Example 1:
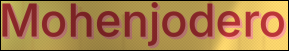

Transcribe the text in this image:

Mohenjodero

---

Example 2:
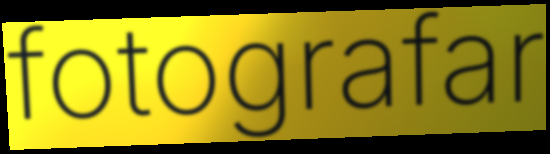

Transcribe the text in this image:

fotografar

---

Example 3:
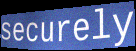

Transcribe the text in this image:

securely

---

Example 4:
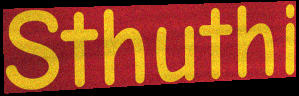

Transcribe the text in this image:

Sthuthi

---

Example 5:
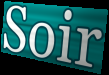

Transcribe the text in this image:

Soir